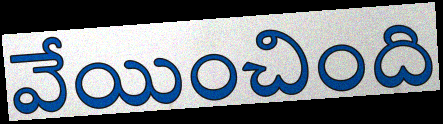
వేయించింది